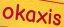
okaxis